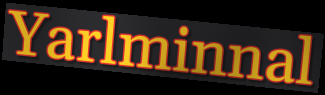
Yarlminnal